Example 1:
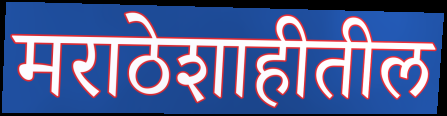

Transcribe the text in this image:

मराठेशाहीतील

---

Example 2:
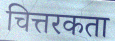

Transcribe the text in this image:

चित्तरकता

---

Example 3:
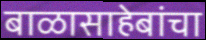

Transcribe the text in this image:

बाळासाहेबांचा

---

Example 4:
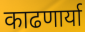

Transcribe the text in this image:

काढणार्या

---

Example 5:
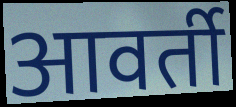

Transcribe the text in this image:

आवर्ती